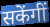
सकेंगीं